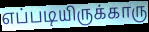
எப்படியிருக்காரு